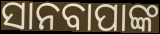
ସାନବାପାଙ୍କ